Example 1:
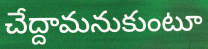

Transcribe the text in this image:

చేద్దామనుకుంటూ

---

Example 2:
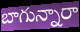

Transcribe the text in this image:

బాగున్నారా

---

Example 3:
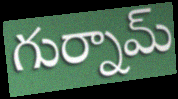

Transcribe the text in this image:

గుర్నామ్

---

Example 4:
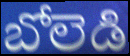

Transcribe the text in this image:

బోలెడి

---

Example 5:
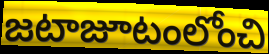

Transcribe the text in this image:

జటాజూటంలోంచి